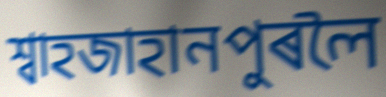
শ্বাহজাহানপুৰলৈ